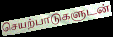
செயற்பாடுகளுடன்